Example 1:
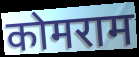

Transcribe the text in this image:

कोमराम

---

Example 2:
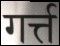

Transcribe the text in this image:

गर्त्त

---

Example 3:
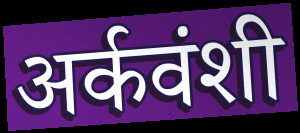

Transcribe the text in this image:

अर्कवंशी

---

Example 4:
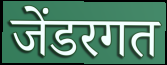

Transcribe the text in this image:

जेंडरगत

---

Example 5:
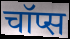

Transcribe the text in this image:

चॉप्स